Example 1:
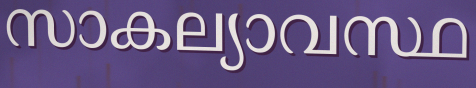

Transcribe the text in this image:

സാകല്യാവസ്ഥ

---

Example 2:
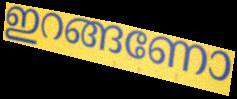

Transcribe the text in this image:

ഇറങ്ങണോ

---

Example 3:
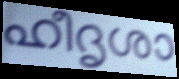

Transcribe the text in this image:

ഹീദൃശാ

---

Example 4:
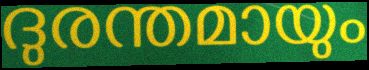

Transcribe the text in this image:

ദുരന്തമായും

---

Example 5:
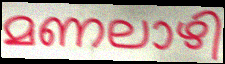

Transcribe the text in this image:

മണലാഴി